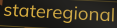
stateregional